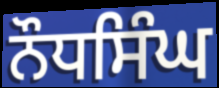
ਨੌਧਸਿੰਘ